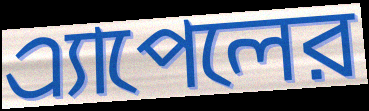
এ্যাপেলের